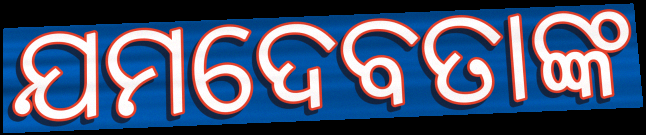
ଯମଦେବତାଙ୍କ